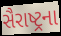
સૈરાષ્ટ્રના